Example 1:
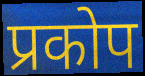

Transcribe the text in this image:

प्रकोप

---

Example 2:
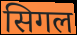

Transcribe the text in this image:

सिगल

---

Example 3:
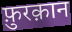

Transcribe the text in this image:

फ़ुरक़ान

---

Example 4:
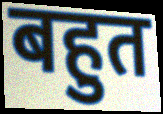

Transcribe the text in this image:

बहुत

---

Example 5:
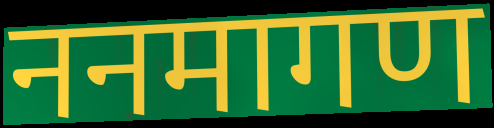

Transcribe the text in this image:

ननमागण